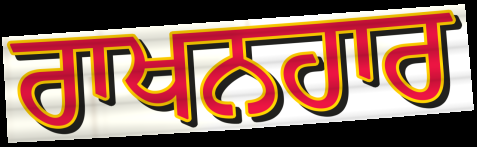
ਰਾਖਨਹਾਰ